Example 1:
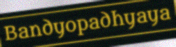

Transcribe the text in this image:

Bandyopadhyaya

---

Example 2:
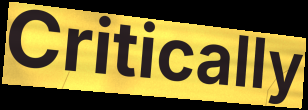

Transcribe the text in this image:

Critically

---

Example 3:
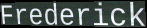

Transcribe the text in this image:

Frederick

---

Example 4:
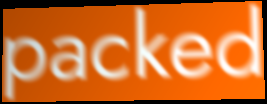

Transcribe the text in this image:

packed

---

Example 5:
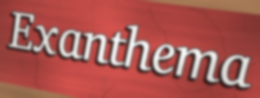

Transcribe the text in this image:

Exanthema